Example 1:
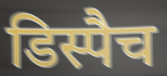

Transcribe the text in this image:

डिस्पैच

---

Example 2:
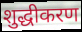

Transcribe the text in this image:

शुद्धीकरण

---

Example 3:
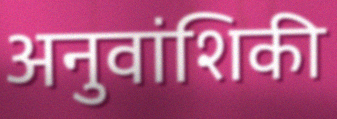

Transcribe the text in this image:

अनुवांशिकी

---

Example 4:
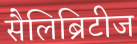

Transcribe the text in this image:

सैलिब्रिटीज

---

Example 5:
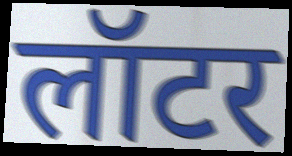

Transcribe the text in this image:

लॉटर